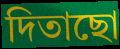
দিতাছো